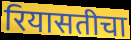
रियासतीचा